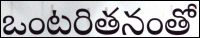
ఒంటరితనంతో